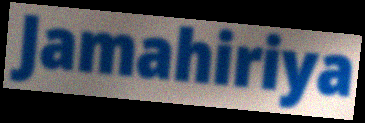
Jamahiriya